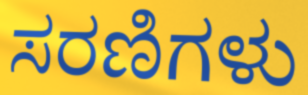
ಸರಣಿಗಳು